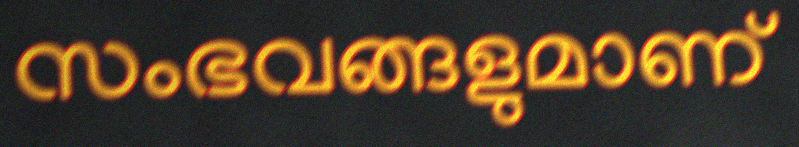
സംഭവങ്ങളുമാണ്